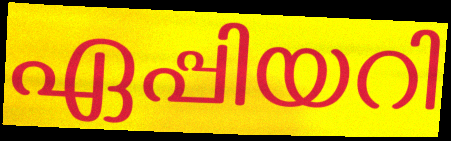
ഏപ്പിയറി